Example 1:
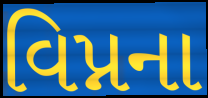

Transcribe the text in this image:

વિપ્નના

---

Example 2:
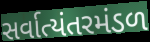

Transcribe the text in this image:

સર્વાત્યંતરમંડળ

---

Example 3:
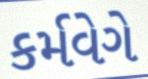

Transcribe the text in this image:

કર્મવેગે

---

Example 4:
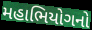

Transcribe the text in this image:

મહાભિયોગનો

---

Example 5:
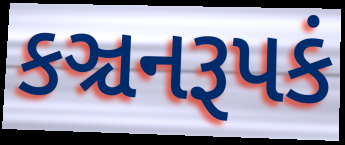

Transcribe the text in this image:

કઞ્ચનરૂપકં